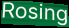
Rosing